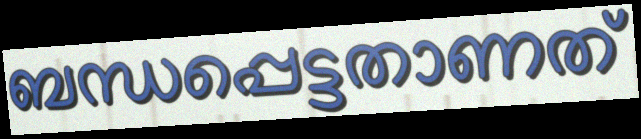
ബന്ധപ്പെട്ടതാണത്